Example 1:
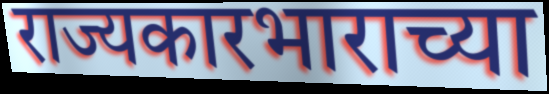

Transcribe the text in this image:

राज्यकारभाराच्या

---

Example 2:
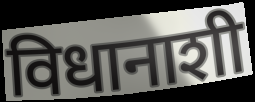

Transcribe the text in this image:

विधानाशी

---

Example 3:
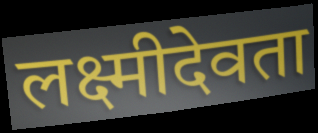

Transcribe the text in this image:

लक्ष्मीदेवता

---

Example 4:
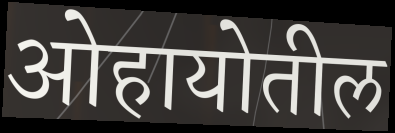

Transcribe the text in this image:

ओहायोतील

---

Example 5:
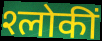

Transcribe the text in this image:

श्लोकीं